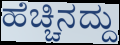
ಹೆಚ್ಚಿನದ್ದು